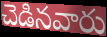
చెడినవారు